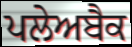
ਪਲੇਅਬੈਕ